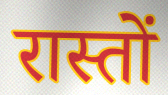
रास्तों